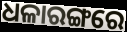
ଧଳାରଙ୍ଗରେ